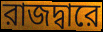
রাজদ্বারে